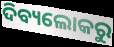
ଦିବ୍ୟଲୋକରୁ